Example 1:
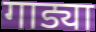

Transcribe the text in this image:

गाड्या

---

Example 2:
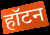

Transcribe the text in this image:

हॉटन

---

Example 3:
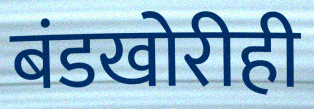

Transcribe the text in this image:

बंडखोरीही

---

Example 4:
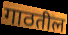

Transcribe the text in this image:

गाठतील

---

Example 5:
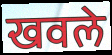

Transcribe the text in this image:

खवले